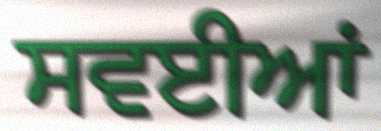
ਸਵਈਆਂ